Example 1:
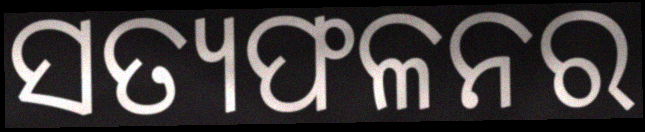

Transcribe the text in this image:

ସତ୍ୟଫଳନର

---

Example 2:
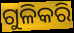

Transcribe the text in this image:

ଗୁଳିକରି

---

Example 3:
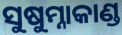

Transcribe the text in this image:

ସୁଷୁମ୍ନାକାଣ୍ଡ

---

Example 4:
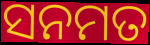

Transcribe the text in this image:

ସନମତ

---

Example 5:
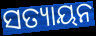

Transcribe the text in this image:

ସତ୍ୟାୟନ